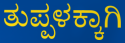
ತುಪ್ಪಳಕ್ಕಾಗಿ